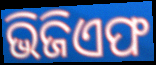
ଭିଜିଏଫ